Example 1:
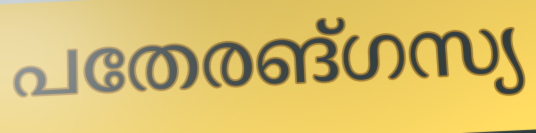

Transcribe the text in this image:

പതേരങ്ഗസ്യ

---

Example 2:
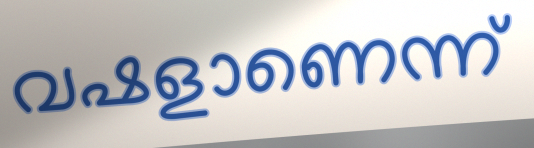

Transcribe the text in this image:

വഷളാണെന്ന്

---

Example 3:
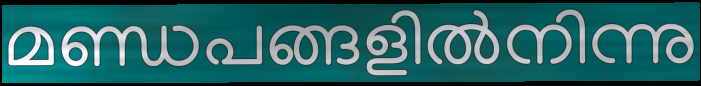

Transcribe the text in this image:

മണ്ഡപങ്ങളിൽനിന്നു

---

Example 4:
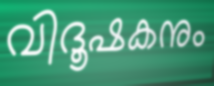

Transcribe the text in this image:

വിദൂഷകനും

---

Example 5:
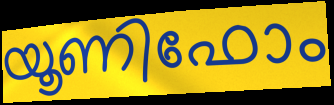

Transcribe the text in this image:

യൂണിഫോം